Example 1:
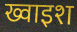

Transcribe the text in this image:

ख्वाइश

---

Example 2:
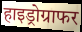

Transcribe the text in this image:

हाइड्रोग्राफर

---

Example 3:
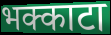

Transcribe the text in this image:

भक्काटा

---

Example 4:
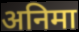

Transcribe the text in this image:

अनिमा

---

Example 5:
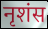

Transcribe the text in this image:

नृशंस